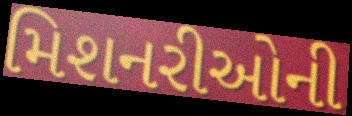
મિશનરીઓની